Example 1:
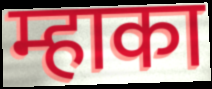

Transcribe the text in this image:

म्हाका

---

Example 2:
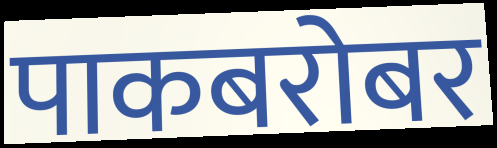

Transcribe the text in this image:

पाकबरोबर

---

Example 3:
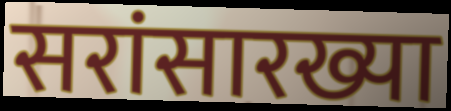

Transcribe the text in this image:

सरांसारख्या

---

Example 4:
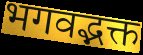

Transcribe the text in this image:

भगवद्भक्त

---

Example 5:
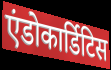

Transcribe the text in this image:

एंडोकार्डिटिस